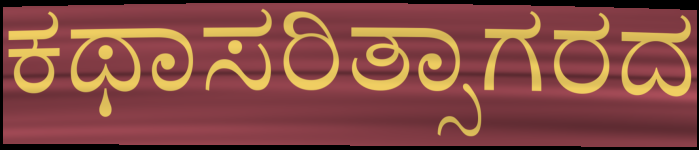
ಕಥಾಸರಿತ್ಸಾಗರದ